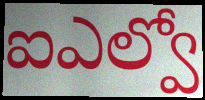
ఐఎల్వో